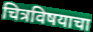
चित्रविषयाचा